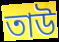
তাউ